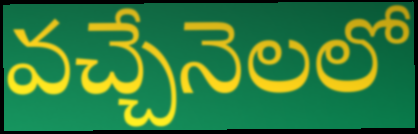
వచ్చేనెలలో